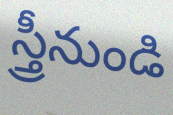
స్త్రీనుండి